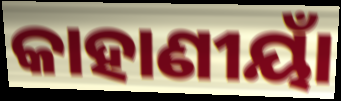
କାହାଣୀୟାଁ